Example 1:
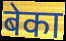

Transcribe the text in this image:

बेका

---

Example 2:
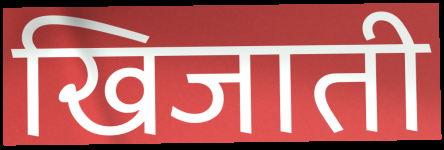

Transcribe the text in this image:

खिजाती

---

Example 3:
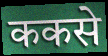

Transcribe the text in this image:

ककसे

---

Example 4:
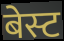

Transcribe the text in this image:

बेस्‍ट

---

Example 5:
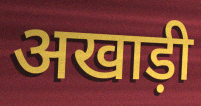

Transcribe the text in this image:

अखाड़ी